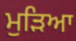
ਮੁੜਿਆ